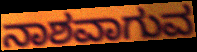
ನಾಶವಾಗುವ